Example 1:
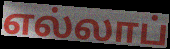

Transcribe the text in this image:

எல்லாப்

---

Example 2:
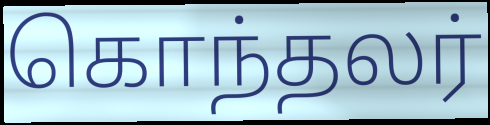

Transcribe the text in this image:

கொந்தலர்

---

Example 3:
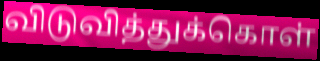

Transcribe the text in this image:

விடுவித்துக்கொள்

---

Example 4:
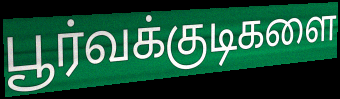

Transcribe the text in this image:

பூர்வக்குடிகளை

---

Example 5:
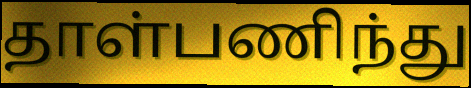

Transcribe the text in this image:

தாள்பணிந்து